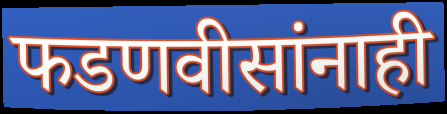
फडणवीसांनाही